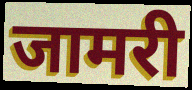
जामरी